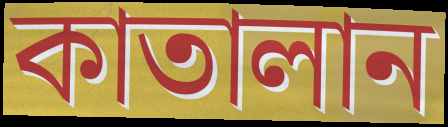
কাতালান